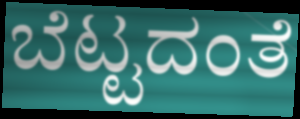
ಬೆಟ್ಟದಂತೆ